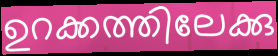
ഉറക്കത്തിലേക്കു